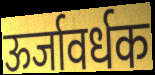
ऊर्जावर्धक